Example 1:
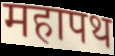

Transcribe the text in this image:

महापथ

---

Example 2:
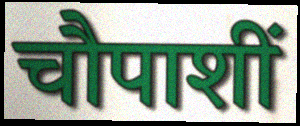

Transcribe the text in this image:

चौपाशीं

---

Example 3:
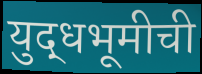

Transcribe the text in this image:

युद्धभूमीची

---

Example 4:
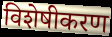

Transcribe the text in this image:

विशेषीकरण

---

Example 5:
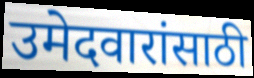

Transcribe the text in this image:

उमेदवारांसाठी